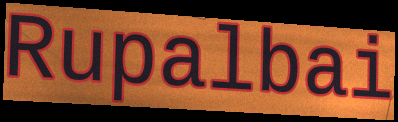
Rupalbai